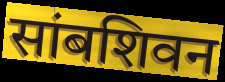
सांबशिवन